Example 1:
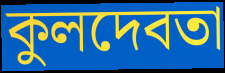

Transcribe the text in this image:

কুলদেবতা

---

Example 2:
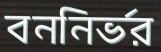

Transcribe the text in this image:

বননির্ভর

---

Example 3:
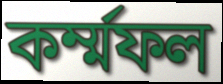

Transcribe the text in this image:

কর্ম্মফল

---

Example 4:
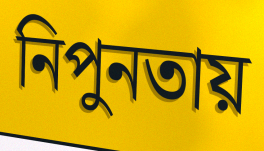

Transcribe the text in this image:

নিপুনতায়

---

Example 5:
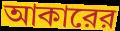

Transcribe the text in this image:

আকারের